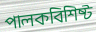
পালকবিশিষ্ট